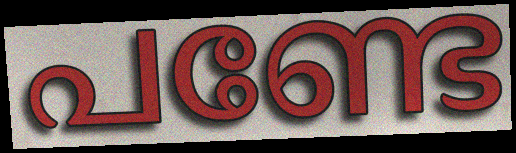
പണ്ടേ